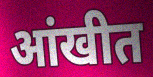
आंखीत